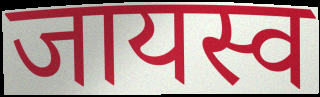
जायस्व